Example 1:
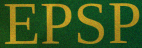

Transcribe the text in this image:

EPSP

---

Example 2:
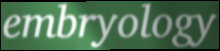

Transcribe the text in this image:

embryology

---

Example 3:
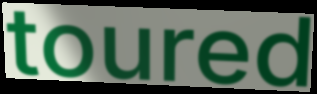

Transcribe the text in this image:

toured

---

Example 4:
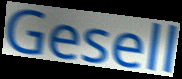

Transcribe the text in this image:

Gesell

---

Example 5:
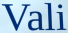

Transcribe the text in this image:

Vali